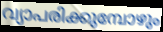
വ്യാപരിക്കുമ്പോഴും